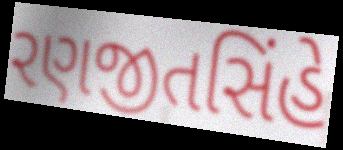
રણજીતસિંહે